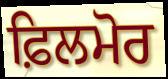
ਫ਼ਿਲਮੋਰ